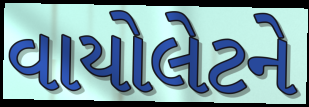
વાયોલેટને